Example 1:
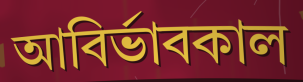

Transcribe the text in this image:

আবির্ভাবকাল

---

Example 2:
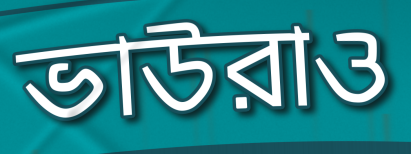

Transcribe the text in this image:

ভাউরাও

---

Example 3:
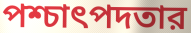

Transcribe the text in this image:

পশ্চাৎপদতার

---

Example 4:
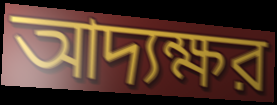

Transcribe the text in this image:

আদ্যক্ষর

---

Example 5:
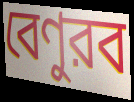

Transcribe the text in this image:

বেণুরব